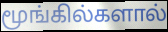
மூங்கில்களால்